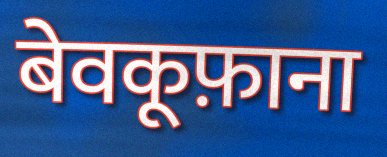
बेवकूफ़ाना